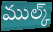
ముల్క్